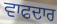
ਵਾਫਦਾਰ